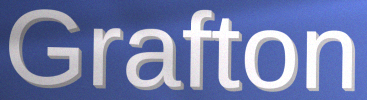
Grafton